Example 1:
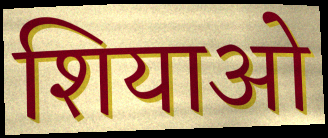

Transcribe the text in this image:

शियाओ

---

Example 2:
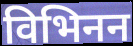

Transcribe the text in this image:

विभिनन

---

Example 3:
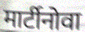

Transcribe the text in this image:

मार्टीनोवा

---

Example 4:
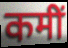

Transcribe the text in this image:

कमीं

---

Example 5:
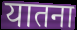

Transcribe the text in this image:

यातना